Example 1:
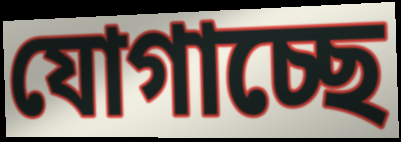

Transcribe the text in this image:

যোগাচ্ছে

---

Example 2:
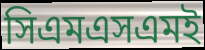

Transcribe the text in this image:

সিএমএসএমই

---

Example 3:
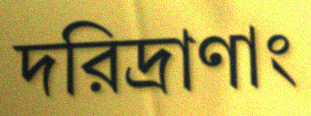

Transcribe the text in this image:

দরিদ্রাণাং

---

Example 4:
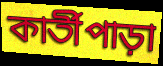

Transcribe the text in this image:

কার্তীপাড়া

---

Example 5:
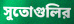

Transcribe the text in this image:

সুতোগুলির